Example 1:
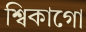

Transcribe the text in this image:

শ্বিকাগো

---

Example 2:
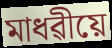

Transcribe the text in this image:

মাধৱীয়ে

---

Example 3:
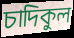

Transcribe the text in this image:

চাদিকুল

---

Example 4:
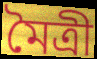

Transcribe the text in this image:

মৈত্ৰী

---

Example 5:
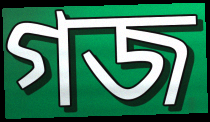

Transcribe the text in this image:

গজ